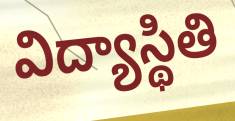
విద్యాస్థితి